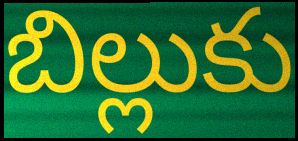
బిల్లుకు